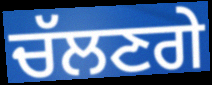
ਚੱਲਣਗੇ